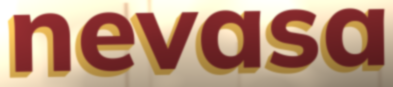
nevasa